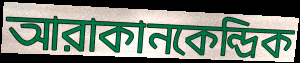
আরাকানকেন্দ্রিক